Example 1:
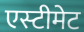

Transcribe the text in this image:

एस्‍टीमेट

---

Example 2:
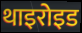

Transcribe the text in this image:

थाइरोइड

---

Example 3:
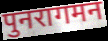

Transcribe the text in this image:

पुनरागमन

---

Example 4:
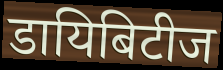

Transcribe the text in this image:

डायिबिटीज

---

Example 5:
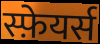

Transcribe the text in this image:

स्फ़ेयर्स